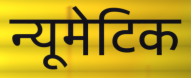
न्यूमेटिक